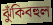
ঝুঁকিবহুল